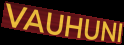
VAUHUNI